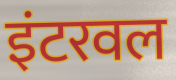
इंटरवल